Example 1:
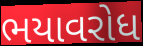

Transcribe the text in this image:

ભયાવરોધ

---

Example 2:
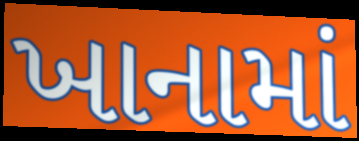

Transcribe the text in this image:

ખાનામાં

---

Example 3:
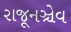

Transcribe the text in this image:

રાજૂનઞ્ચેવ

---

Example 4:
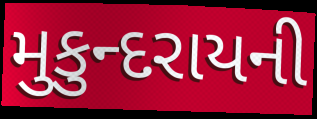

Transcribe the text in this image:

મુકુન્દરાયની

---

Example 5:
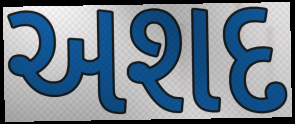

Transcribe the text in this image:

અશદ